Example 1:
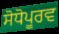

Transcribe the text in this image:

ਸੋਧੋਪੂਰਵ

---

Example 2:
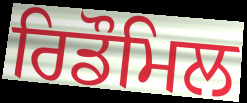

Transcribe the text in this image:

ਰਿਡੌਮਿਲ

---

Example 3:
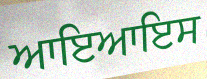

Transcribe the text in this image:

ਆਇਆਇਸ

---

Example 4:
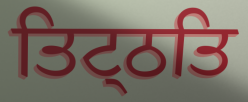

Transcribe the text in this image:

ਤਿਟ੍ਠਤਿ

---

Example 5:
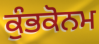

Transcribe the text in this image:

ਕੁੰਭਕੋਨਮ